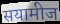
सयामीज